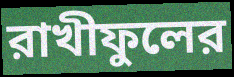
রাখীফুলের